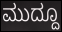
ಮುದ್ದೂ